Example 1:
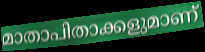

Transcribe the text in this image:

മാതാപിതാക്കളുമാണ്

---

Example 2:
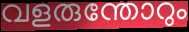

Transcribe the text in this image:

വളരുന്തോറും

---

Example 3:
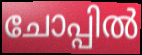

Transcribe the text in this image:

ചോപ്പിൽ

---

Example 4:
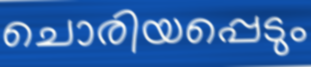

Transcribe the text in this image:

ചൊരിയപ്പെടും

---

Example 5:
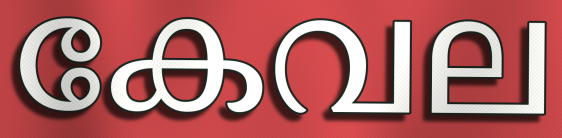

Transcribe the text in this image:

കേവല